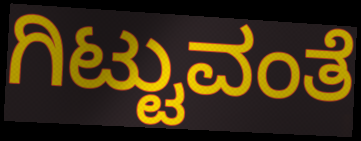
ಗಿಟ್ಟುವಂತೆ